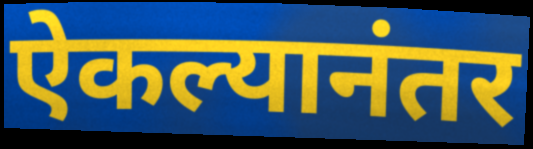
ऐकल्यानंतर